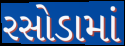
રસોડામાં